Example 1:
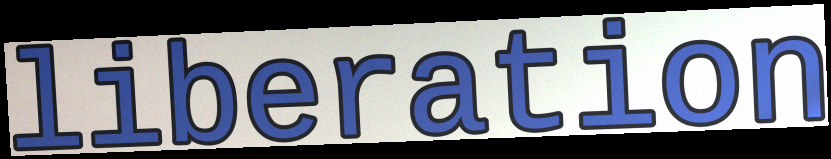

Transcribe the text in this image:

liberation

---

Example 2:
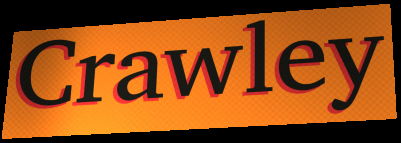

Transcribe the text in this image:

Crawley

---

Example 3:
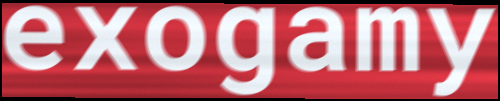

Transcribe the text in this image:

exogamy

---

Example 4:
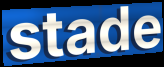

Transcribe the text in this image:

stade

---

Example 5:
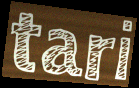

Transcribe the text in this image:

tari